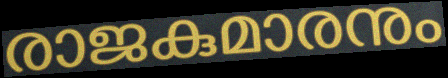
രാജകുമാരനും